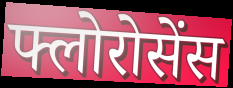
फ्लोरोसेंस